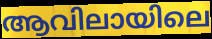
ആവിലായിലെ